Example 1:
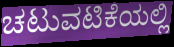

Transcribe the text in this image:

ಚಟುವಟಿಕೆಯಲ್ಲಿ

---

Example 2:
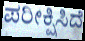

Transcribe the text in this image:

ಪರೀಕ್ಷಿಸಿದೆ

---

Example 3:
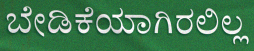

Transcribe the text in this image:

ಬೇಡಿಕೆಯಾಗಿರಲಿಲ್ಲ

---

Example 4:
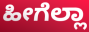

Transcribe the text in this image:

ಹೀಗೆಲ್ಲಾ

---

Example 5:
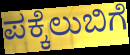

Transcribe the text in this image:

ಪಕ್ಕೆಲುಬಿಗೆ